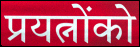
प्रयत्नोंको